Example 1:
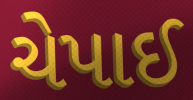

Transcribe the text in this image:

ચેપાઈ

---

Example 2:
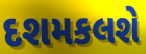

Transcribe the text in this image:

દશમકલશે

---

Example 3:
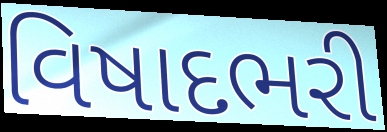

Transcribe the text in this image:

વિષાદભરી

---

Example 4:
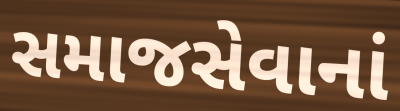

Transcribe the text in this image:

સમાજસેવાનાં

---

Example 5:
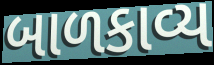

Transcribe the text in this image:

બાળકાવ્ય